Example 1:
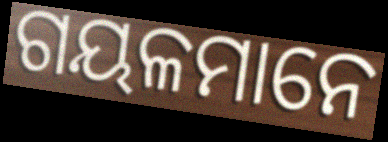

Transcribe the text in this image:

ଗୟଳମାନେ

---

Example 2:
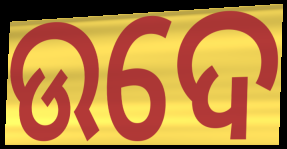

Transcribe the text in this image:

ଉଦେ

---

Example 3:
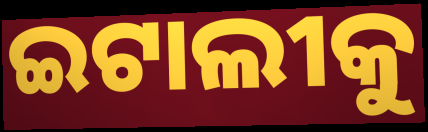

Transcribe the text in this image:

ଇଟାଲୀକୁ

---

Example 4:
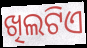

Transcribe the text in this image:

ଖିଲଟିଏ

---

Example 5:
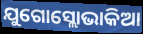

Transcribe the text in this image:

ଯୁଗୋସ୍ଲୋଭାକିଆ